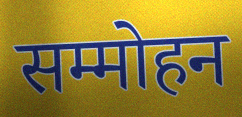
सम्मोहन